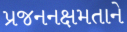
પ્રજનનક્ષમતાને